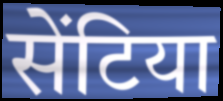
सेंटिया